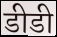
डीडी